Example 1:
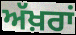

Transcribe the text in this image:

ਅੱਖ਼ਰਾਂ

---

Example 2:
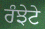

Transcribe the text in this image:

ਰੰਝੇਟੇ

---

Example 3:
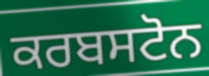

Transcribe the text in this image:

ਕਰਬਸਟੋਨ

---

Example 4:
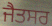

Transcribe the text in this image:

ਜੈਤਸਰ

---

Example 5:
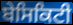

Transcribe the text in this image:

ਬੇਸਿਕਿਟੀ